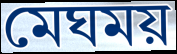
মেঘময়